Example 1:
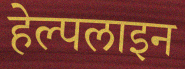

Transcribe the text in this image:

हेल्पलाइन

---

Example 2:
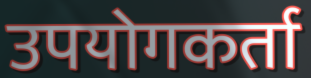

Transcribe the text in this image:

उपयोगकर्ता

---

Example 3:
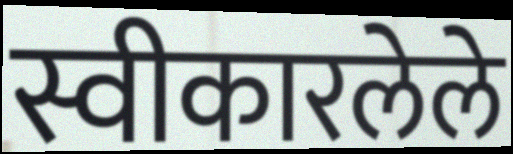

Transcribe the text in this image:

स्वीकारलेले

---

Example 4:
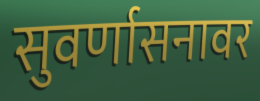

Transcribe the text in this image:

सुवर्णासनावर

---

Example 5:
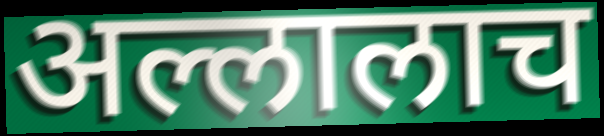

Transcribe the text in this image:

अल्लालाच